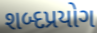
શબ્દપ્રયોગ